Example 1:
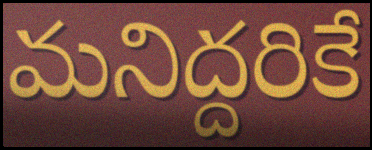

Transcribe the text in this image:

మనిద్దరికే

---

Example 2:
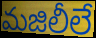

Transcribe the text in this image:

మజిలీలే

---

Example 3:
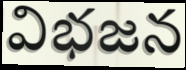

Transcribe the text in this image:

విభజన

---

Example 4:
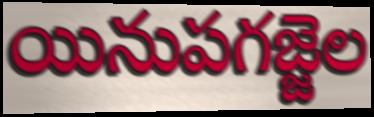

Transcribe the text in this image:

యినుపగజ్జెల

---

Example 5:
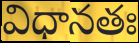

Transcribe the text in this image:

విధానతః